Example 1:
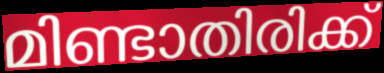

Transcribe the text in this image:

മിണ്ടാതിരിക്ക്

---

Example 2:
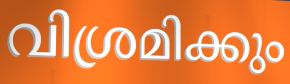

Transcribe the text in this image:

വിശ്രമിക്കും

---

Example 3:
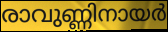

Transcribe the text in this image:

രാവുണ്ണിനായർ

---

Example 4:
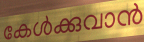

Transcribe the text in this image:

കേൾക്കുവാൻ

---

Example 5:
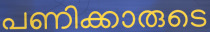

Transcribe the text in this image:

പണിക്കാരുടെ